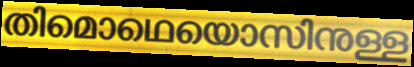
തിമൊഥെയൊസിനുള്ള